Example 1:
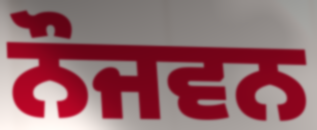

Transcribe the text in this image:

ਨੌਜਵਨ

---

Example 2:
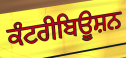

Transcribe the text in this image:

ਕੰਟਰੀਬਿਊਸ਼ਨ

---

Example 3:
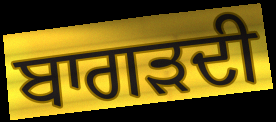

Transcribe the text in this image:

ਬਾਗੜਦੀ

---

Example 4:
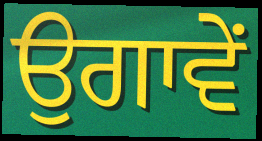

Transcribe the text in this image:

ਉਗਾਵੇਂ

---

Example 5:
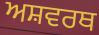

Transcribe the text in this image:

ਅਸ਼ਵਰਥ